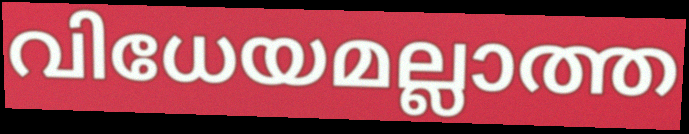
വിധേയമല്ലാത്ത